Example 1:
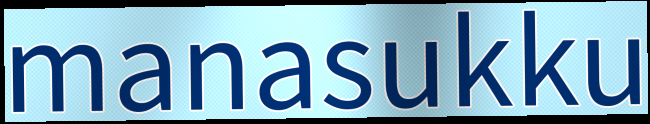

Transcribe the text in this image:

manasukku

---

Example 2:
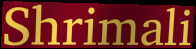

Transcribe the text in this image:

Shrimali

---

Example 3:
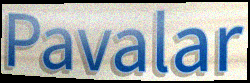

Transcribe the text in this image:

Pavalar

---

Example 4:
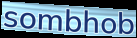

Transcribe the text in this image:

sombhob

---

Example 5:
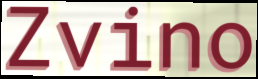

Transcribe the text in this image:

Zvino